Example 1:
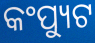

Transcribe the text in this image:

କଂପ୍ୟୁଟ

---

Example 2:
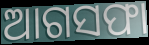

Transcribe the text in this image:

ଆଗସଫା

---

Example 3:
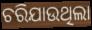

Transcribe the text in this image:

ଚରିଯାଉଥିଲା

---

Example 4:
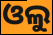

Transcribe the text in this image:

ଓଲୁ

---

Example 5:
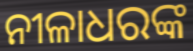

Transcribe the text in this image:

ନୀଳାଧରଙ୍କ